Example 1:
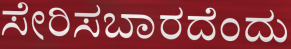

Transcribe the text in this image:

ಸೇರಿಸಬಾರದೆಂದು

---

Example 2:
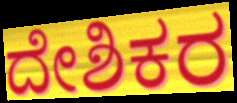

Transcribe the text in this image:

ದೇಶಿಕರ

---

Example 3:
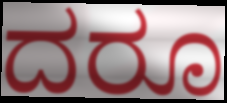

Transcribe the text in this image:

ದರೂ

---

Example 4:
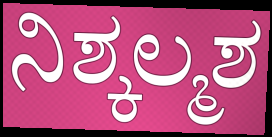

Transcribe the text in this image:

ನಿಶ್ಕಲ್ಮಶ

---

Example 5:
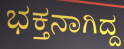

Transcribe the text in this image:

ಭಕ್ತನಾಗಿದ್ದ